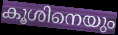
കൂശിനെയും